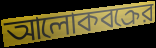
আলোকবক্রের